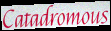
Catadromous